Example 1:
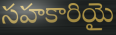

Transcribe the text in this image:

సహకారియై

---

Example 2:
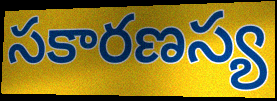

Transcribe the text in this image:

సకారణస్య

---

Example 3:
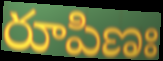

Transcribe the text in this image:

రూపిణః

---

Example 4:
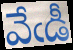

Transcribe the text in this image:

వేఁడీ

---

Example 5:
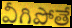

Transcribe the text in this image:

వీగిపోతే